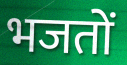
भजतों